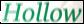
Hollow